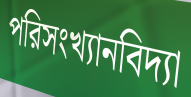
পরিসংখ্যানবিদ্যা